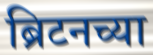
ब्रिटनच्या